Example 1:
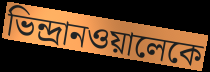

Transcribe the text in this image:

ভিন্দ্রানওয়ালেকে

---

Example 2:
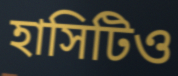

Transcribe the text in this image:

হাসিটিও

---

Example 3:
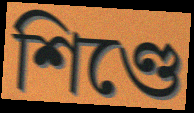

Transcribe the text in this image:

শিণ্ডে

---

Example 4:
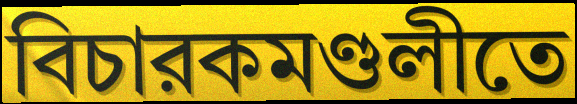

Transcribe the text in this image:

বিচারকমণ্ডলীতে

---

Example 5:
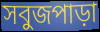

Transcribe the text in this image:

সবুজপাড়া